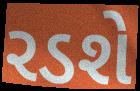
રડશે